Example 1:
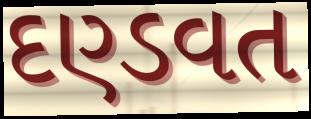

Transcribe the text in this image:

દણ્ડવત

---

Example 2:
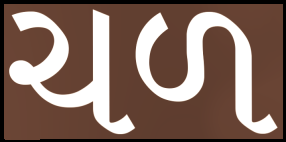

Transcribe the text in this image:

ચળ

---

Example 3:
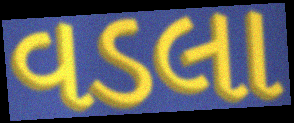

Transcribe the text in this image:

વડલા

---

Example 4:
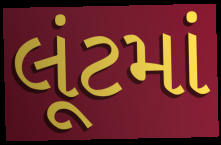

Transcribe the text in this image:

લૂંટમાં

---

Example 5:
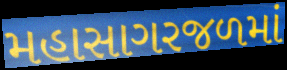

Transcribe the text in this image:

મહાસાગરજળમાં